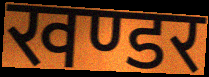
खण्डर